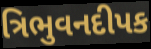
ત્રિભુવનદીપક